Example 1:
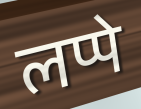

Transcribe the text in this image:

लप्पे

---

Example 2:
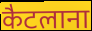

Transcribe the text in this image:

कैटलाना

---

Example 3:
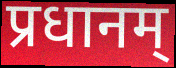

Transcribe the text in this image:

प्रधानम्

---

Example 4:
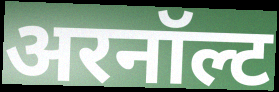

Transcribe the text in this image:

अरनॉल्ट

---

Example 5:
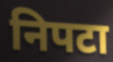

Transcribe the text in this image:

निपटा